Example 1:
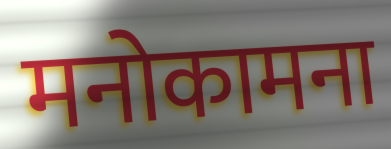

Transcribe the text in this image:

मनोकामना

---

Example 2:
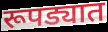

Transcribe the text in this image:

रूपड्यात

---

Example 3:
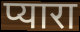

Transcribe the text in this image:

प्यारा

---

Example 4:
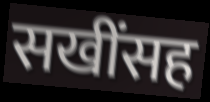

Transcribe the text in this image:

सखींसह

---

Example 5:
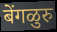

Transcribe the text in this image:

बेंगळुरु